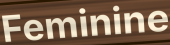
Feminine